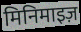
मिनिमाइज़